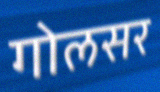
गोलसर